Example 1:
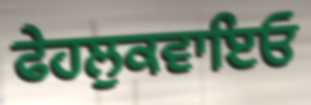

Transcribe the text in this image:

ਫੇਹਲੁਕਵਾਇਓ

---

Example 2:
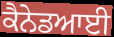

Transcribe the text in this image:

ਕੈਨੇਡਆਈ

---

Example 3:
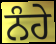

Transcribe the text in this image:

ਨੰਹੇ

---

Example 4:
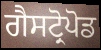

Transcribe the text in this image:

ਗੈਸਟ੍ਰੋਪੋਡ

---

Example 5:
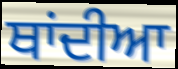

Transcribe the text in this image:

ਥਾਂਦੀਆ